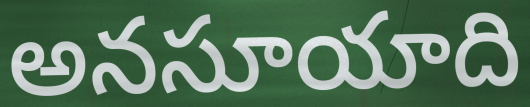
అనసూయాది